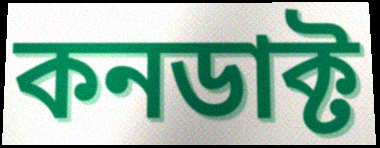
কনডাক্ট